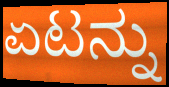
ಏಟನ್ನು